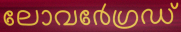
ലോവർേഗ്രഡ്